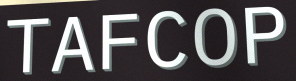
TAFCOP